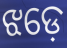
ଝଡ଼େ